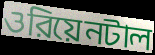
ওরিয়েনটাল